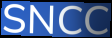
SNCC